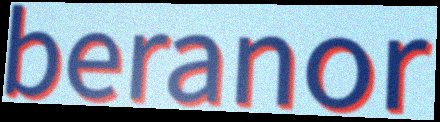
beranor